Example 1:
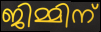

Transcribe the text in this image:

ജിമ്മിന്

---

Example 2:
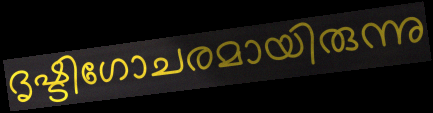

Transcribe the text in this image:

ദൃഷ്ടിഗോചരമായിരുന്നു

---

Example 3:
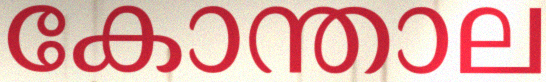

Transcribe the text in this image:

കോന്താല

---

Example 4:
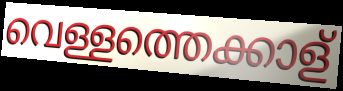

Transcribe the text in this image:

വെള്ളത്തെക്കാള്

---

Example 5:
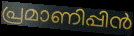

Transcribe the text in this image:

പ്രമാണിപ്പിൻ